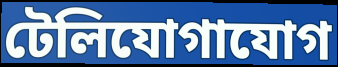
টেলিযোগাযোগ